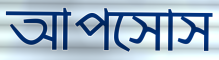
আপসোস